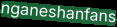
nganeshanfans